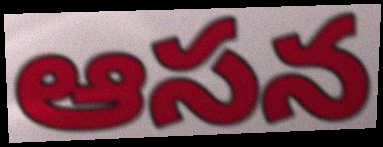
ఆసన